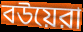
বউয়েরা